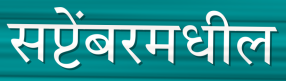
सप्टेंबरमधील